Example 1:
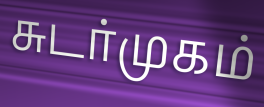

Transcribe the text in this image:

சுடர்முகம்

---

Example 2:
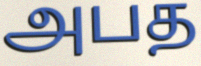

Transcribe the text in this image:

அபத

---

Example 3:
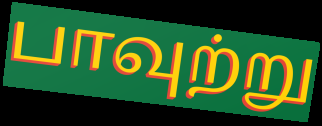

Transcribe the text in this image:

பாவுற்று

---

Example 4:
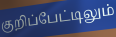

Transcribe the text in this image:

குறிப்பேட்டிலும்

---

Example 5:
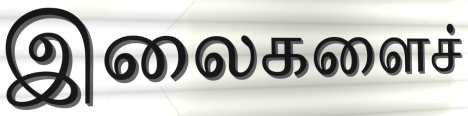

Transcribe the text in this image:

இலைகளைச்